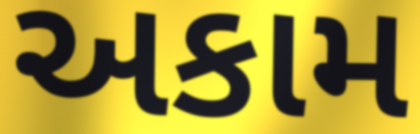
અકામ